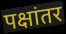
पक्षांतर